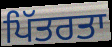
ਪਿੱਤਰਤਾ